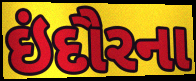
ઇંદૌરના